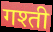
गश्‍ती